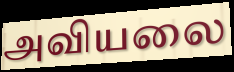
அவியலை